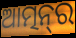
ଆତ୍ମନ୍‌ର